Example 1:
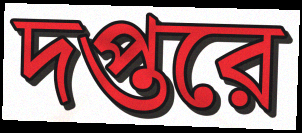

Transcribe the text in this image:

দপ্তরে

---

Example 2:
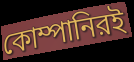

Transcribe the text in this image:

কোম্পানিরই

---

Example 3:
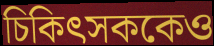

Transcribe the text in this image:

চিকিৎসককেও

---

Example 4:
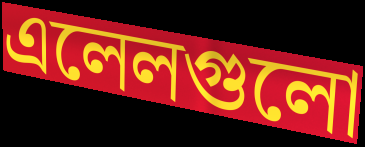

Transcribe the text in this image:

এলেলগুলো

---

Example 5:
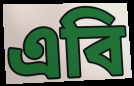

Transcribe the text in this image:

এবি